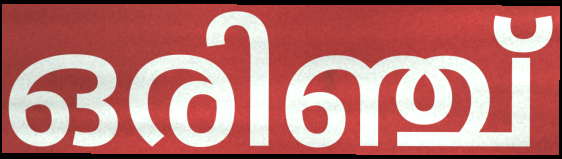
ഒരിഞ്ച്